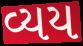
વ્યય